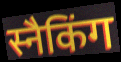
स्नैकिंग